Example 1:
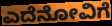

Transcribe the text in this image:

ಎದೆನೋವಿಗೆ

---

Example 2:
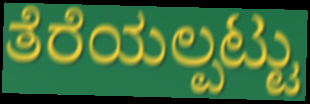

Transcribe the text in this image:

ತೆರೆಯಲ್ಪಟ್ಟು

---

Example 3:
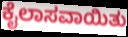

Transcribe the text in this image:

ಕೈಲಾಸವಾಯಿತು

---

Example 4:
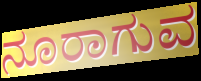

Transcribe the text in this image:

ನೂರಾಗುವ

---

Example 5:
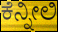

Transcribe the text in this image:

ಕೆನ್ನೀಲಿ